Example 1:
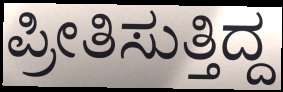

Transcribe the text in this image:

ಪ್ರೀತಿಸುತ್ತಿದ್ದ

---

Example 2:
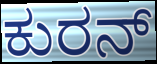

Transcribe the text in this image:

ಕುರನ್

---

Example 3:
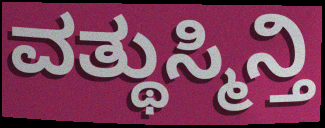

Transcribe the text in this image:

ವತ್ಥುಸ್ಮಿನ್ತಿ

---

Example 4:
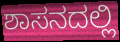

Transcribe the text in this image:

ಶಾಸನದಲ್ಲಿ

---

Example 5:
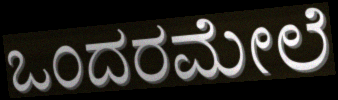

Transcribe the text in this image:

ಒಂದರಮೇಲೆ